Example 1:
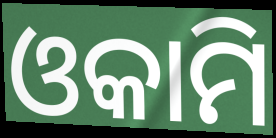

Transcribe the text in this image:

ଓକାମି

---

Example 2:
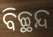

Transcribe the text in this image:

ବିଚ୍ଛନ୍ଦ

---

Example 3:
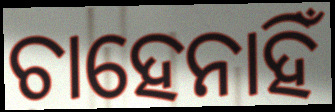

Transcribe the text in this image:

ଚାହେନାହିଁ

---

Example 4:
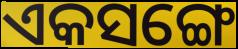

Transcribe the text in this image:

ଏକସଙ୍ଗେ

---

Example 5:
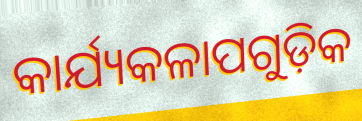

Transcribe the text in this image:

କାର୍ଯ୍ୟକଳାପଗୁଡ଼ିକ